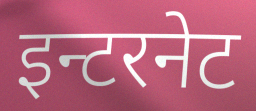
इन्टरनेट